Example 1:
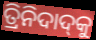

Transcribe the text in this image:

ତ୍ରିନିଦାଦ୍‍କୁ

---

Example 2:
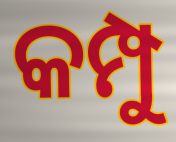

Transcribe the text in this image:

କମ୍ପୁ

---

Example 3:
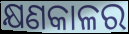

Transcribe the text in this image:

କ୍ଷଣକାଳର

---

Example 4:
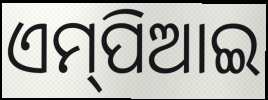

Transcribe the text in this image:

ଏମ୍‌ପିଆଇ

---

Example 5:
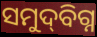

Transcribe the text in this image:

ସମୁଦ୍‌ବିଗ୍ନ